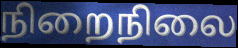
நிறைநிலை